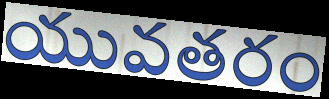
యువతరం